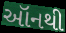
ઑનથી